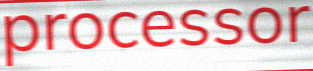
processor